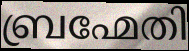
ബ്രഹ്മേതി